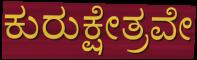
ಕುರುಕ್ಷೇತ್ರವೇ